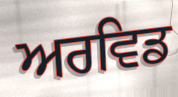
ਅਰਵਿਡ